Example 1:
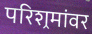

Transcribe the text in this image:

परिश्रमांवर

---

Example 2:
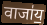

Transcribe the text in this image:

वाजा॑य॒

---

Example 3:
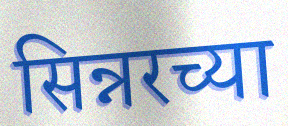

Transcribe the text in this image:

सिन्नरच्या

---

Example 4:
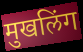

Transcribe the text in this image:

मुखलिंग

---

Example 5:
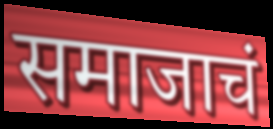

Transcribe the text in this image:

समाजाचं